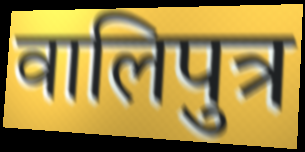
वालिपुत्र